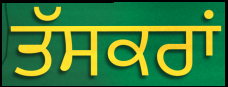
ਤੱਸਕਰਾਂ